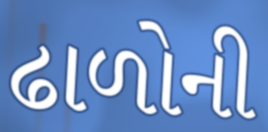
ઢાળોની